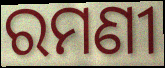
ରମଣୀ